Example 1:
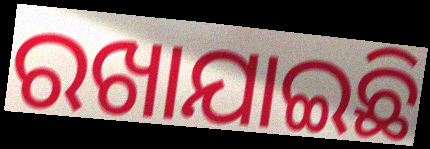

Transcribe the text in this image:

ରଖାଯାଇଛି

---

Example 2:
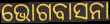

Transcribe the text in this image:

ଭୋଗବାସନା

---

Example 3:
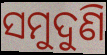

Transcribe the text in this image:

ସମୁଦୁଣି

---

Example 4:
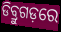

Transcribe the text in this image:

ଡିବ୍ରୁଗଡ଼ରେ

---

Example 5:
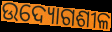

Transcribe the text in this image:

ଉଦ୍ୟୋଗଶୀଳ